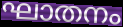
ഘാതനം